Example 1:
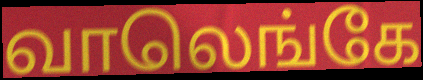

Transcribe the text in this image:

வாலெங்கே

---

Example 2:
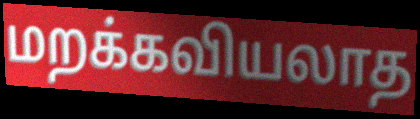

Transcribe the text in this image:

மறக்கவியலாத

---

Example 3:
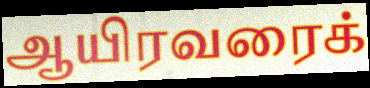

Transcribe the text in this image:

ஆயிரவரைக்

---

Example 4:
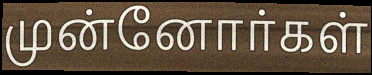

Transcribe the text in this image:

முன்னோர்கள்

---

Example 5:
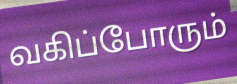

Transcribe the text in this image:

வகிப்போரும்